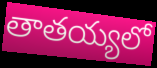
తాతయ్యలో